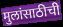
मुलांसाठीची